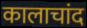
कालाचांद